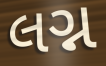
લગ્ન